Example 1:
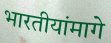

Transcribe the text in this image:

भारतीयांमागे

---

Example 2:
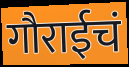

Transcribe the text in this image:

गौराईचं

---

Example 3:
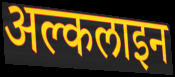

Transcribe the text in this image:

अल्कलाइन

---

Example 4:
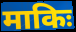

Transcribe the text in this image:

माकिः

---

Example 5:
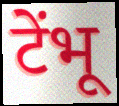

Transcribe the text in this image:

टेंभू